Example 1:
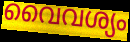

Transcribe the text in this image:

വൈവശ്യം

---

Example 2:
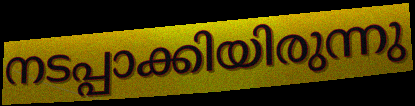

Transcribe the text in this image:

നടപ്പാക്കിയിരുന്നു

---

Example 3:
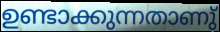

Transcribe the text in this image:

ഉണ്ടാക്കുന്നതാണു്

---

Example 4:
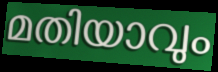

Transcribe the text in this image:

മതിയാവും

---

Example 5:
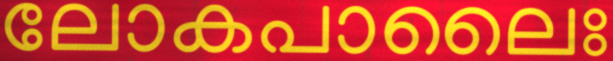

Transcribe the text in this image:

ലോകപാലൈഃ